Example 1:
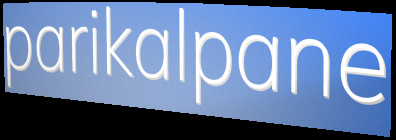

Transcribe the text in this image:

parikalpane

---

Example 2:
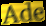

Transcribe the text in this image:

Ade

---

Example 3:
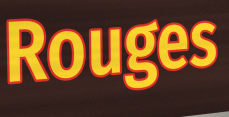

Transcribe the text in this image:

Rouges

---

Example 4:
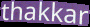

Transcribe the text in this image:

thakkar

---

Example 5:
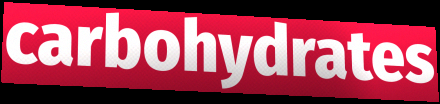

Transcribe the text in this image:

carbohydrates